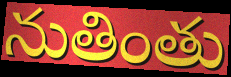
నుతింతు